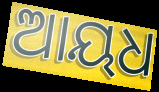
ଆୟଧ